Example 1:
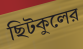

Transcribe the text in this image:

ছিটকুলের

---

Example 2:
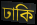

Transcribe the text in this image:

ঢাকি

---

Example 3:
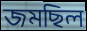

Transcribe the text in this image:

জমছিল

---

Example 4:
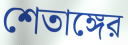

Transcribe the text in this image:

শেতাঙ্গের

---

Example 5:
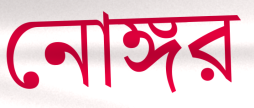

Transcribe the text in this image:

নোঙ্গর